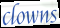
clowns